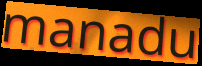
manadu